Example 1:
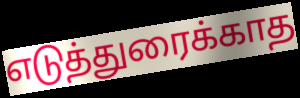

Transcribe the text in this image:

எடுத்துரைக்காத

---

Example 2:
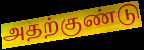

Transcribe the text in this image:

அதற்குண்டு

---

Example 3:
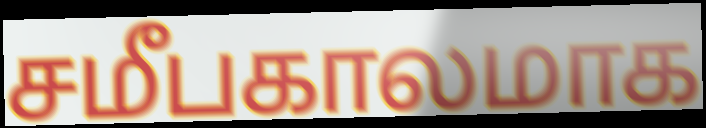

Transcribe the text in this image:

சமீபகாலமாக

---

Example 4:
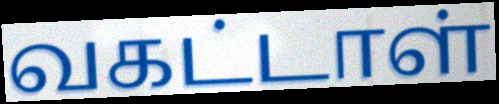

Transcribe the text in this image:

வகட்டாள்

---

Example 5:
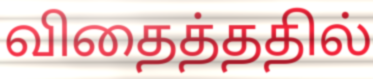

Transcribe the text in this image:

விதைத்ததில்